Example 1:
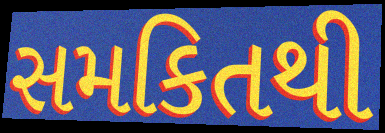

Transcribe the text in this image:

સમકિતથી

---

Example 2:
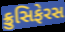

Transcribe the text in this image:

ક્રુસિફેરસ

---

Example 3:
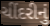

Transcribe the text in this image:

ચીંદરીનું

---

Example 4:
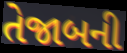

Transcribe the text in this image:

તેજાબની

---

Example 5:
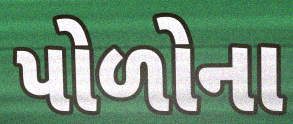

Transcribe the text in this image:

પોળોના